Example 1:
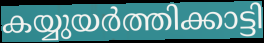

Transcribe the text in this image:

കയ്യുയർത്തിക്കാട്ടി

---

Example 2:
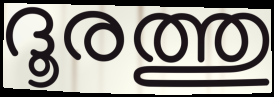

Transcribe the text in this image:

ദൂരത്തു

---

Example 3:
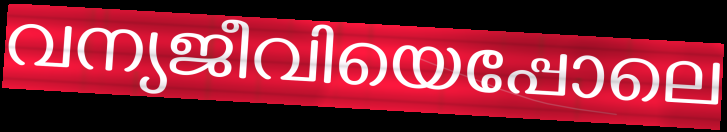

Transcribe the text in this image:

വന്യജീവിയെപ്പോലെ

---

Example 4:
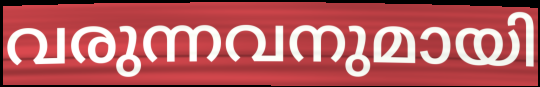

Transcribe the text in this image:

വരുന്നവനുമായി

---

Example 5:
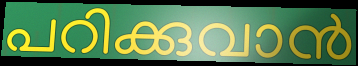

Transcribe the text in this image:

പറിക്കുവാൻ